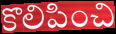
కొలిపించి